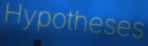
Hypotheses